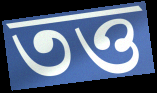
তত্ত